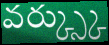
వర్క్స్కు